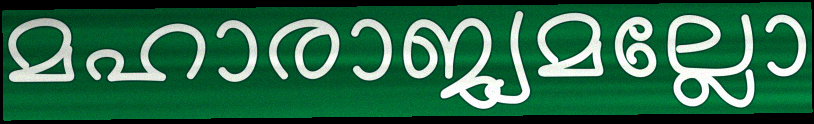
മഹാരാജ്യമല്ലോ